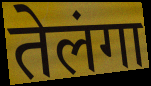
तेलंगा